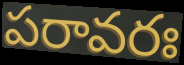
పరావరః